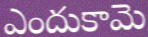
ఎందుకామె